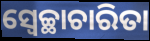
ସ୍ୱେଚ୍ଛାଚାରିତା